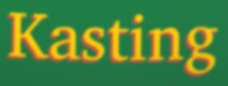
Kasting